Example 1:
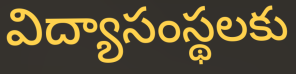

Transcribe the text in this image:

విద్యాసంస్థలకు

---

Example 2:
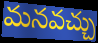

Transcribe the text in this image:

మనవచ్చు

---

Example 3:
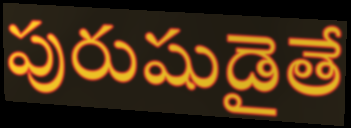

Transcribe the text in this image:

పురుషుడైతే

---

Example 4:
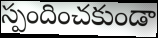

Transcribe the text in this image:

స్పందించకుండా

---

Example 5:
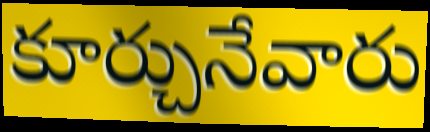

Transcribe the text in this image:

కూర్చునేవారు